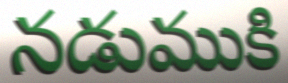
నడుముకి